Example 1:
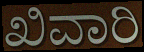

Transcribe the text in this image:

ಖಿವಾರಿ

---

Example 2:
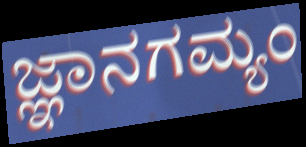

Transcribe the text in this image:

ಜ್ಞಾನಗಮ್ಯಂ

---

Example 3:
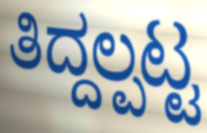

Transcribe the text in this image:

ತಿದ್ದಲ್ಪಟ್ಟ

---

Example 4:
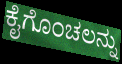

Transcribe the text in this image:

ಕೈಗೊಂಚಲನ್ನು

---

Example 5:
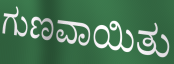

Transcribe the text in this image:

ಗುಣವಾಯಿತು